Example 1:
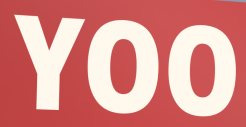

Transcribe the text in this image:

YOO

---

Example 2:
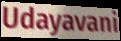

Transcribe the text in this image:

Udayavani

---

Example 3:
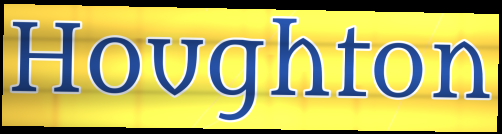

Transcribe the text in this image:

Houghton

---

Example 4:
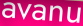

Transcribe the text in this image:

avanu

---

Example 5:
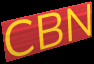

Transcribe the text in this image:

CBN